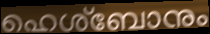
ഹെശ്ബോനും